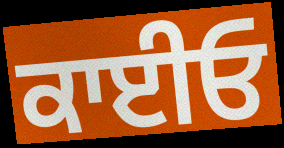
ਕਾਈਓ